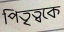
পিতৃত্বকে